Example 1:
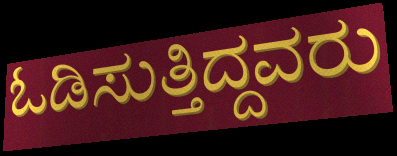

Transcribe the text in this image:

ಓಡಿಸುತ್ತಿದ್ದವರು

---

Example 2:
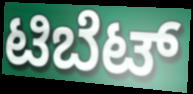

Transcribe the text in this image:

ಟಿಬೆಟ್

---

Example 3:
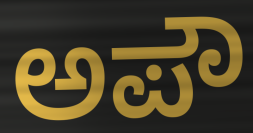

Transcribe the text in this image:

ಅಪೌ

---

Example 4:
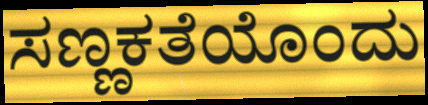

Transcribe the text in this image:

ಸಣ್ಣಕತೆಯೊಂದು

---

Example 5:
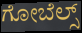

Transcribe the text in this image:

ಗೋಬೆಲ್ಸ್